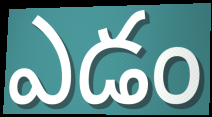
ఎడం